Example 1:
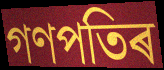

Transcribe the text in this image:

গণপতিৰ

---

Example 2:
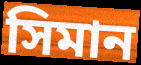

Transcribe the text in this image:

সিমান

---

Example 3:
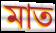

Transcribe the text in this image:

মাত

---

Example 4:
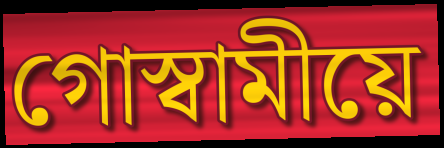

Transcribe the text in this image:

গোস্বামীয়ে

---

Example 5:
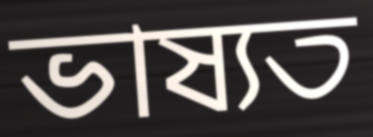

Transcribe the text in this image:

ভাষ্যত